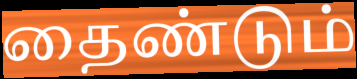
தைண்டும்